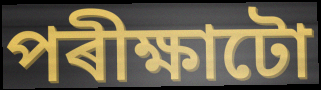
পৰীক্ষাটো